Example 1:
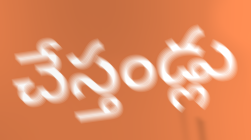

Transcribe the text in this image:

చేస్తండ్లు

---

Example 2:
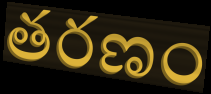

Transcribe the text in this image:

తరణం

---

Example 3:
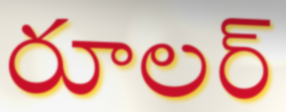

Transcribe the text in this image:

రూలర్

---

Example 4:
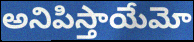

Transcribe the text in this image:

అనిపిస్తాయేమో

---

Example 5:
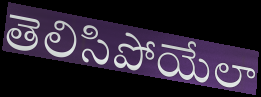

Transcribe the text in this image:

తెలిసిపోయేలా